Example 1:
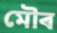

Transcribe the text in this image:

মৌৰ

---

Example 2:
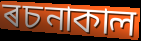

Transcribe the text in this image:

ৰচনাকাল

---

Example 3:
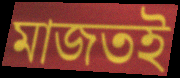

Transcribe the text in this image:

মাজতই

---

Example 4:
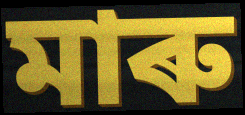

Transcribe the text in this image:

মাৰু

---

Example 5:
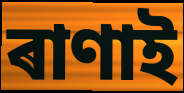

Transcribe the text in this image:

ৰাণাই